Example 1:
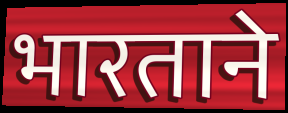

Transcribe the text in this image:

भारताने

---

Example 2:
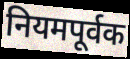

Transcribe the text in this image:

नियमपूर्वक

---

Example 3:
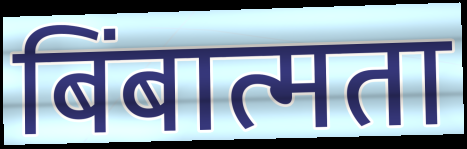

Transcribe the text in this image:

बिंबात्मता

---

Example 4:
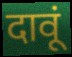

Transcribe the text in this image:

दावूं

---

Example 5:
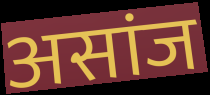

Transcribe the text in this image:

असांज